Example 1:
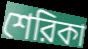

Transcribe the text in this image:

শেরিকা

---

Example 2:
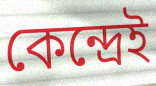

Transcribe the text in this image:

কেন্দ্রেই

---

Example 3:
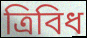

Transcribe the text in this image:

ত্রিবিধ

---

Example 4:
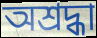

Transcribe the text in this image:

অশ্রদ্ধা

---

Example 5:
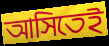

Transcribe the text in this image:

আসিতেই